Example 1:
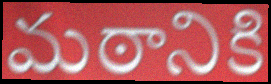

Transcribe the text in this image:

మఠానికి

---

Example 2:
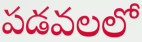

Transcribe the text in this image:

పడవలలో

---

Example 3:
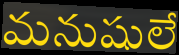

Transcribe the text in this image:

మనుషులే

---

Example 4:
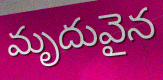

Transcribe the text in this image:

మృదువైన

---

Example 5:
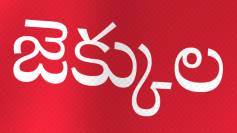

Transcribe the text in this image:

జెక్కుల